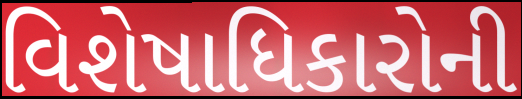
વિશેષાધિકારોની